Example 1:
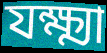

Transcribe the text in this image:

যক্ষ্মা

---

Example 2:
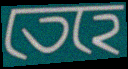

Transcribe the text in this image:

তেহে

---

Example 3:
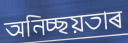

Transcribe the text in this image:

অনিচ্ছয়তাৰ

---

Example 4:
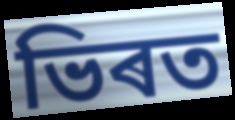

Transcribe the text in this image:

ভিৰত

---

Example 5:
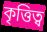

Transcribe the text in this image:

কৃত্তিত্ব